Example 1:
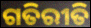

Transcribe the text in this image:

ଗତିରୀତି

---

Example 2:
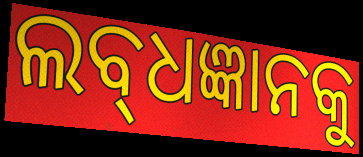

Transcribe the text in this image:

ଲବ୍‌ଧଜ୍ଞାନକୁ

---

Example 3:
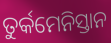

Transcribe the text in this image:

ତୁର୍କମେନିସ୍ତାନ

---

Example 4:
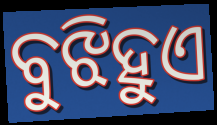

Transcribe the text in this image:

ବୁଝିହୁଏ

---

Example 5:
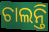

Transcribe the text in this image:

ଚାଲନ୍ତି